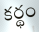
కర్థం